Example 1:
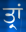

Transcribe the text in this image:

ਤ੍ਰਾਂ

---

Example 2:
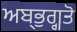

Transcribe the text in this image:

ਅਬ੍ਭੁਗ੍ਗਤੋ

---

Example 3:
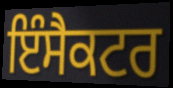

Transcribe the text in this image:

ਇੰਸੈਕਟਰ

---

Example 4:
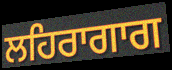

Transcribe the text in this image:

ਲਹਿਰਾਗਾਗ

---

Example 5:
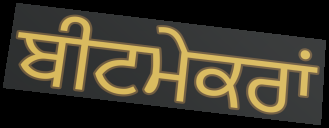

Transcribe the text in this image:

ਬੀਟਮੇਕਰਾਂ